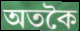
অতকৈ